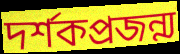
দর্শকপ্রজন্ম